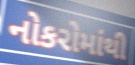
નોકરોમાંથી